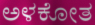
ಅಳಕೋತ